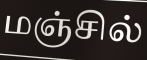
மஞ்சில்